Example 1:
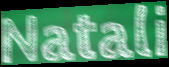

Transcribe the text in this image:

Natali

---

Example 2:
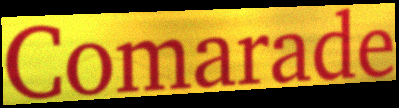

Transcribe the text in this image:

Comarade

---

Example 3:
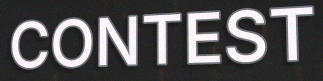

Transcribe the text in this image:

CONTEST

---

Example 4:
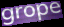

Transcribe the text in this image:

grope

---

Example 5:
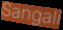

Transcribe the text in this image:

Sangali